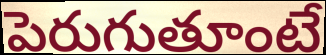
పెరుగుతూంటే